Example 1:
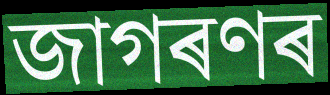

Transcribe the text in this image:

জাগৰণৰ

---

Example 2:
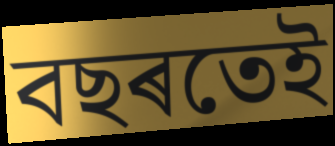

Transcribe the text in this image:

বছৰতেই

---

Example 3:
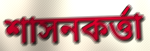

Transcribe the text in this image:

শাসনকৰ্ত্তা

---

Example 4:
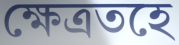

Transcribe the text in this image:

ক্ষেত্ৰতহে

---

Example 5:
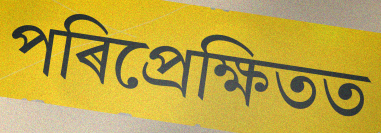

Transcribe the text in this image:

পৰিপ্ৰেক্ষিতত